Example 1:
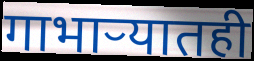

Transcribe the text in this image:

गाभाऱ्यातही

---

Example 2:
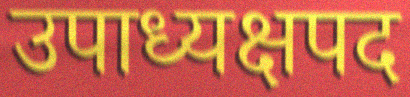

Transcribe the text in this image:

उपाध्यक्षपद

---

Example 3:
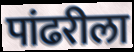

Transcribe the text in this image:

पांढरीला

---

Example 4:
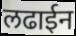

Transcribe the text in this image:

लढाईन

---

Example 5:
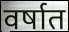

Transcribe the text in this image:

वर्षात